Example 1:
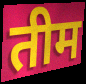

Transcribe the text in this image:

तीम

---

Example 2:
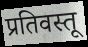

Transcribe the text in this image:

प्रतिवस्तू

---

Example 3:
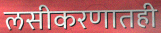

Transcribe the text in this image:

लसीकरणातही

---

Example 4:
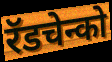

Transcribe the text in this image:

रॅडचेन्को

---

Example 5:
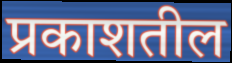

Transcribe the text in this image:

प्रकाशतील